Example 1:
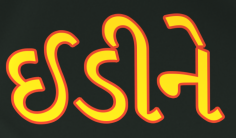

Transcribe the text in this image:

ઈડીને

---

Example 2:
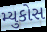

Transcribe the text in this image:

મ્યુકોસ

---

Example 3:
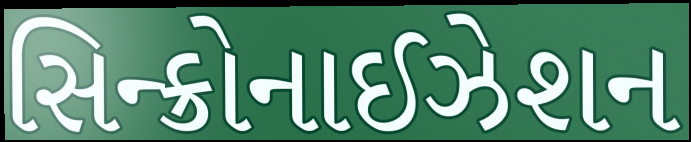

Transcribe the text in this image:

સિન્ક્રોનાઈઝેશન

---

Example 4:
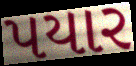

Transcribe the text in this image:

પયાર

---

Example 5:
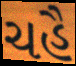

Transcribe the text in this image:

ચહૈ